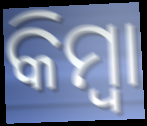
କିମ୍ବା